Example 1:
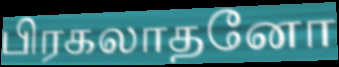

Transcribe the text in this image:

பிரகலாதனோ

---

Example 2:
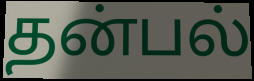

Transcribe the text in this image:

தன்பல்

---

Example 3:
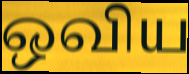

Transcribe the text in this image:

ஒவிய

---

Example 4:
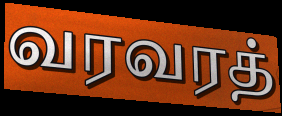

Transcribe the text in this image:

வரவரத்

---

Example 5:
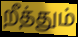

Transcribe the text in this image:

றீத்தும்